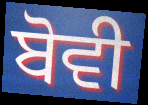
ਬੋਵੀ